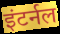
इंटर्नल